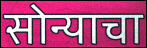
सोन्याचा